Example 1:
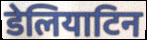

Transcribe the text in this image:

डेलियाटिन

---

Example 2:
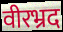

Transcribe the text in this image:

वीरभ्रद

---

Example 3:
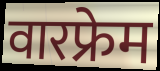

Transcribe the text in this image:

वारफ्रेम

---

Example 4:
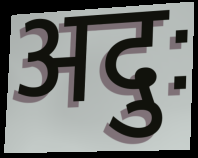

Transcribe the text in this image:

अदुः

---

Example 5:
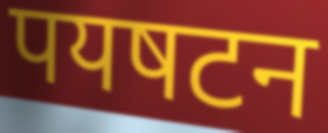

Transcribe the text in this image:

पयषटन